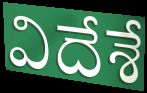
విదేశే